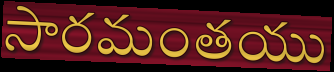
సారమంతయు